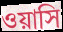
ওয়াসি